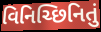
વિનિચ્છિનિતું